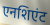
एनशिएंट